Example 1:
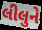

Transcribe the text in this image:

લીલુને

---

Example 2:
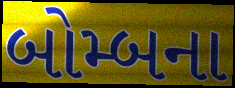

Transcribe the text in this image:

બોમ્બના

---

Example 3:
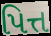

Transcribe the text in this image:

પિત્ત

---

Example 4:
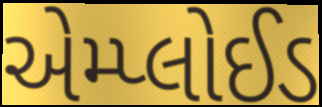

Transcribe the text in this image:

એમ્પ્લોઈડ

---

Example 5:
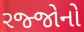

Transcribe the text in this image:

રજ્જોનો